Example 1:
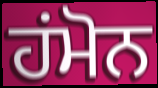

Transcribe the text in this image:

ਹਂਮੋਨ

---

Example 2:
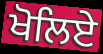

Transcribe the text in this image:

ਖੋਲਿਏ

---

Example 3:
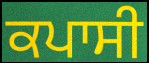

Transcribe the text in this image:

ਕਪਾਸੀ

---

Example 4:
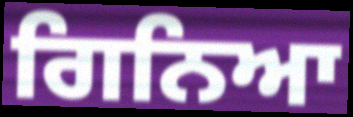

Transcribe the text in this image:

ਗਿਨਿਆ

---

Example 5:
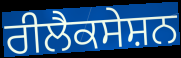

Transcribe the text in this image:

ਰੀਲੈਕਸੇਸ਼ਨ